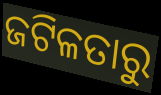
ଜଟିଳତାରୁ